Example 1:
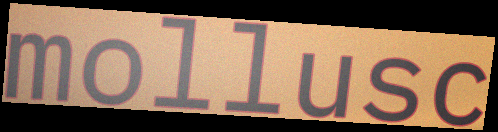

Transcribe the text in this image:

mollusc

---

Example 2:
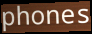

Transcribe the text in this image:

phones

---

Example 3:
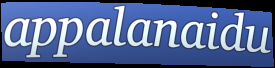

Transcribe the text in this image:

appalanaidu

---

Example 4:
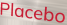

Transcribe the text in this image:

Placebo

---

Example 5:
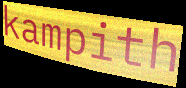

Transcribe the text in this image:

kampith